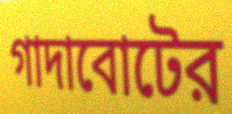
গাদাবোটের